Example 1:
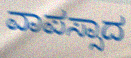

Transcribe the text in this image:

ವಾಪಸ್ಸಾದ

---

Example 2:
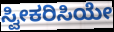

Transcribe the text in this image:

ಸ್ವೀಕರಿಸಿಯೇ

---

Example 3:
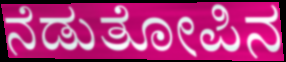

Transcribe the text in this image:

ನೆಡುತೋಪಿನ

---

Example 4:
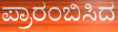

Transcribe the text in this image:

ಪ್ರಾರಂಬಿಸಿದ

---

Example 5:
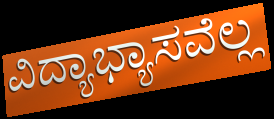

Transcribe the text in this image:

ವಿದ್ಯಾಭ್ಯಾಸವೆಲ್ಲ